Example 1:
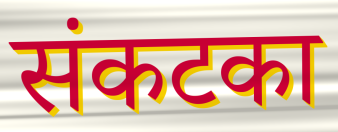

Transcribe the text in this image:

संकटका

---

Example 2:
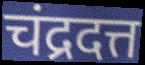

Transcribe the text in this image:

चंद्रदत्त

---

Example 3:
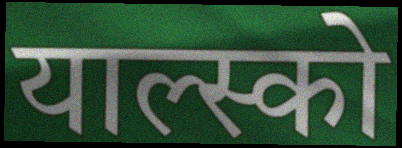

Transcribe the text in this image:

याल्स्को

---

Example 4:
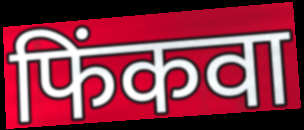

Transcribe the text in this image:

फिंकवा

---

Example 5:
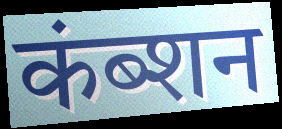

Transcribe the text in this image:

कंब्शन